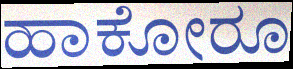
ಹಾಕೋರೂ